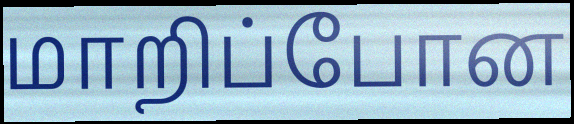
மாறிப்போன